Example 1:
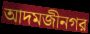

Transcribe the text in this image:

আদমজীনগর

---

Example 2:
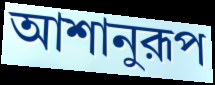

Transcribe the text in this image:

আশানুরূপ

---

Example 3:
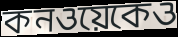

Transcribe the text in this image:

কনওয়েকেও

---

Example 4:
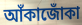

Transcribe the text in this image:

আঁকাজোঁকা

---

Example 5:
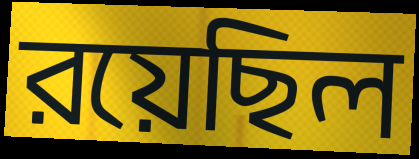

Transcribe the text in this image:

রয়েছিল